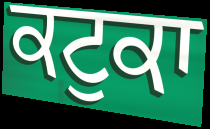
ਕਟੁਕਾ